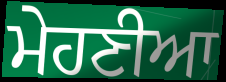
ਮੇਹਣੀਆ